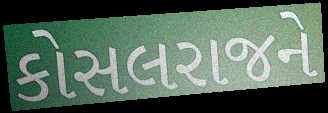
કોસલરાજને